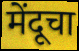
मेंदूचा